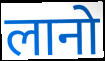
लानो